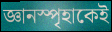
জ্ঞানস্পৃহাকেই